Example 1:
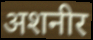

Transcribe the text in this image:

अशनीर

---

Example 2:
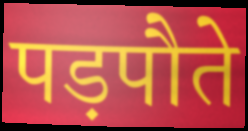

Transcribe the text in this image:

पड़पौते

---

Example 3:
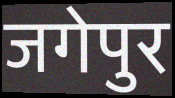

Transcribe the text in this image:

जगेपुर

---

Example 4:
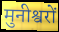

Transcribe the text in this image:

मुनीश्वरों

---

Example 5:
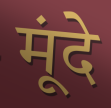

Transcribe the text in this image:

मूंदे